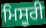
ਮਿਸੂਰੀ